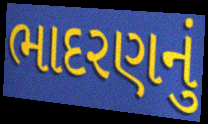
ભાદરણનું